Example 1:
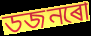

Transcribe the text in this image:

ডজনৰো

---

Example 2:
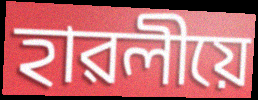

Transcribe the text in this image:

হাৱলীয়ে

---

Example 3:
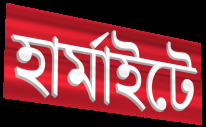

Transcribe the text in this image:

হাৰ্মাইটে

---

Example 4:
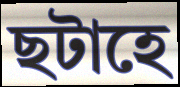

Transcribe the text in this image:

ছটাহে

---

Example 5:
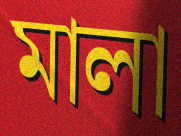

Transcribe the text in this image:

মালা